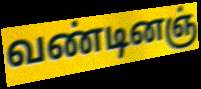
வண்டினஞ்